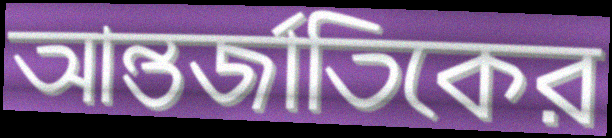
আন্তর্জাতিকের